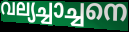
വല്യച്ചാച്ചനെ